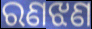
ରଣଝଣ